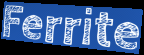
Ferrite